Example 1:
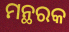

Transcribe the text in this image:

ମନ୍ଥରକ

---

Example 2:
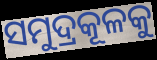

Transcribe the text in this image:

ସମୁଦ୍ରକୂଳକୁ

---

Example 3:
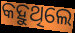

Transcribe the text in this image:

କହୁଥିଲେ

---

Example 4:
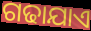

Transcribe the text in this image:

ଗଢାଯାଏ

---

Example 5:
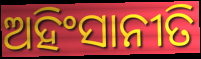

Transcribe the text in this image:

ଅହିଂସାନୀତି